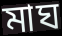
মাঘ